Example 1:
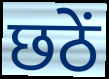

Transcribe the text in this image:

छठें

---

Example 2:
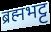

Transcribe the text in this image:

ब्रह्मभट्ट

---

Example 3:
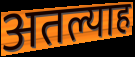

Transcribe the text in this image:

अतल्याह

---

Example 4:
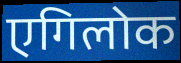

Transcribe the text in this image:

एगिलोक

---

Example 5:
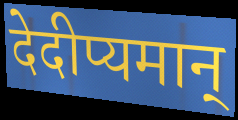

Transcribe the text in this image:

देदीप्यमान्